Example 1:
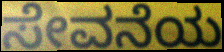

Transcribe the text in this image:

ಸೇವನೆಯ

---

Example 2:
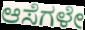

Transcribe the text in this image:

ಆಸೆಗಳೇ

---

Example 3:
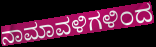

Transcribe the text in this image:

ನಾಮಾವಳಿಗಳಿಂದ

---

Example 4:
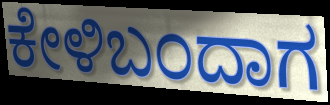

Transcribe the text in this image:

ಕೇಳಿಬಂದಾಗ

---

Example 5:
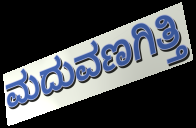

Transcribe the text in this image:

ಮದುವಣಗಿತ್ತಿ